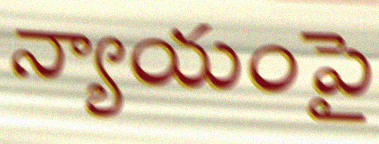
న్యాయంపై